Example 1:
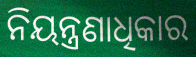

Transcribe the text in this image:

ନିୟନ୍ତ୍ରଣାଧିକାର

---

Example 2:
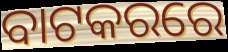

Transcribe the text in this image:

ବାଟକରରେ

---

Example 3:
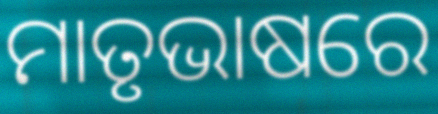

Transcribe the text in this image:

ମାତୃଭାଷରେ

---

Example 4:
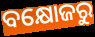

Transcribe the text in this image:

ବକ୍ଷୋଜରୁ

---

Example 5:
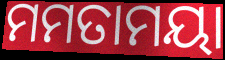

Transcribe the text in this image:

ମମତାମୟା